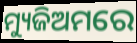
ମ୍ୟୁଜିଅମରେ